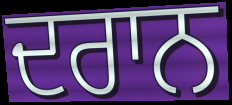
ਦਰਾਨ